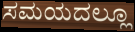
ಸಮಯದಲ್ಲೂ